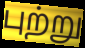
புற்று